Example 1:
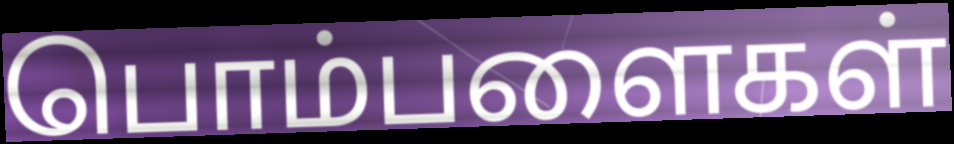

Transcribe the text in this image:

பொம்பளைகள்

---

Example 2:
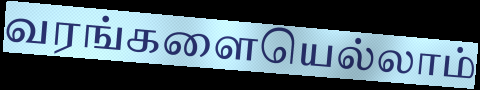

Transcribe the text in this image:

வரங்களையெல்லாம்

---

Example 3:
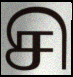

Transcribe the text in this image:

சி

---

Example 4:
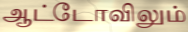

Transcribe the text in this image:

ஆட்டோவிலும்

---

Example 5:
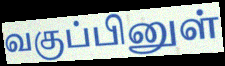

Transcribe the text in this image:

வகுப்பினுள்